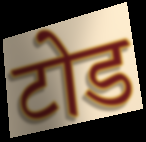
टोड